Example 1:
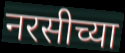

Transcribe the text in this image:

नरसीच्या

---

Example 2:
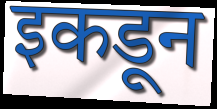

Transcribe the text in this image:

इकडून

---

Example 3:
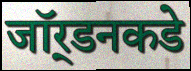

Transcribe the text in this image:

जॉर्डनकडे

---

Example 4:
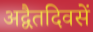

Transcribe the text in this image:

अद्वैतदिवसें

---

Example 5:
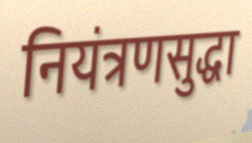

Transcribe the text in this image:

नियंत्रणसुद्धा